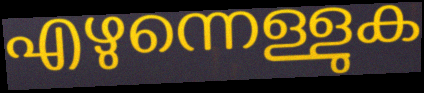
എഴുന്നെള്ളുക